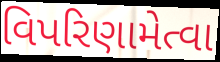
વિપરિણામેત્વા